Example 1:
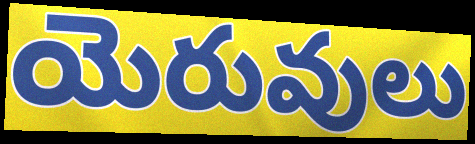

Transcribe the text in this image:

యెరువులు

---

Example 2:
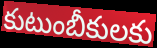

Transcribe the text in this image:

కుటుంబీకులకు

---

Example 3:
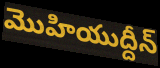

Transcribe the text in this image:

మొహియుద్దీన్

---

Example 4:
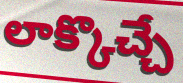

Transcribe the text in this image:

లాక్కొచ్చే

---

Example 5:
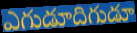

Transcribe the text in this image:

ఎగుడూదిగుడూ